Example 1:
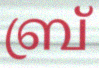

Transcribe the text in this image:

ബ്ര്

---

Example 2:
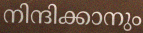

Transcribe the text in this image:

നിന്ദിക്കാനും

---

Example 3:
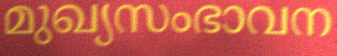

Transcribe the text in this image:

മുഖ്യസംഭാവന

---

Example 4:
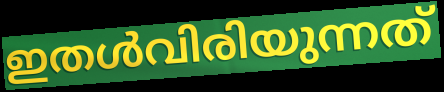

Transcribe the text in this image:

ഇതൾവിരിയുന്നത്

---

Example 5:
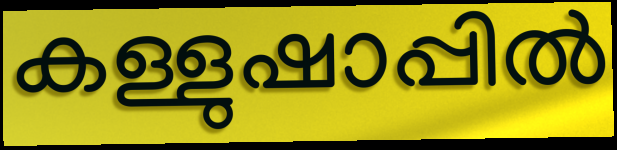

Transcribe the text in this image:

കള്ളുഷാപ്പിൽ